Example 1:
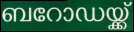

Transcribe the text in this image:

ബറോഡയ്ക്ക്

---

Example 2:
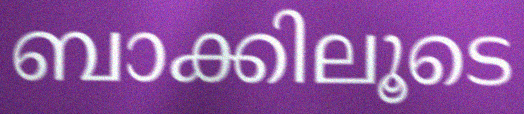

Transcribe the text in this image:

ബാക്കിലൂടെ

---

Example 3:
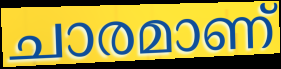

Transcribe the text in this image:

ചാരമാണ്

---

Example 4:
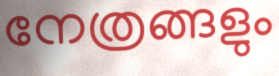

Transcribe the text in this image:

നേത്രങ്ങളും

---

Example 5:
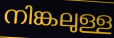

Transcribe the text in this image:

നിങ്കലുള്ള